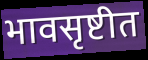
भावसृष्टीत